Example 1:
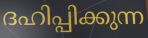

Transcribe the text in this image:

ദഹിപ്പിക്കുന്ന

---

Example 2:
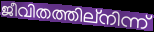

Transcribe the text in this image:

ജീവിതത്തില്നിന്ന്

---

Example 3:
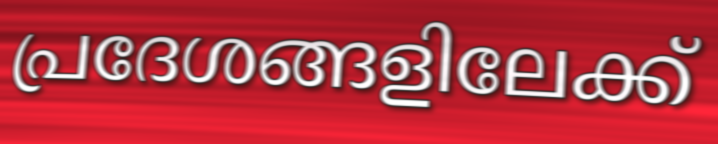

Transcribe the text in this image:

പ്രദേശങ്ങളിലേക്ക്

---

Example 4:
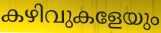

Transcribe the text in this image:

കഴിവുകളേയും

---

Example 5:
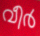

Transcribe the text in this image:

വീർ